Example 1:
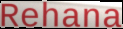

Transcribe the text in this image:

Rehana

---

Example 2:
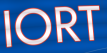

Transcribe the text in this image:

IORT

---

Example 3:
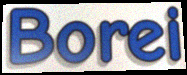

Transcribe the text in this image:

Borei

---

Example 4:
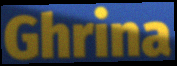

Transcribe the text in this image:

Ghrina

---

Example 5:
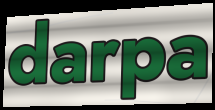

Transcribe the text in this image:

darpa